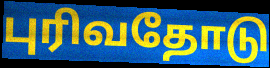
புரிவதோடு